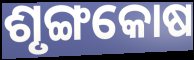
ଶୃଙ୍ଗକୋଷ